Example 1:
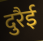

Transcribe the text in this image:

दुरैई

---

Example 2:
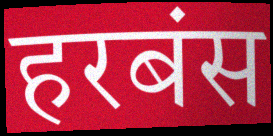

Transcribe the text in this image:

हरबंस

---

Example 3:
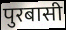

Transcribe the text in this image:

पुरबासी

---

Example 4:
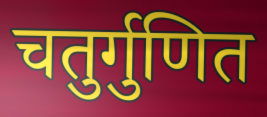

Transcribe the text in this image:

चतुर्गुणित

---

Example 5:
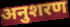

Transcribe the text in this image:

अनुशरण